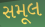
સમૂલ